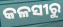
କଳସୀରୁ